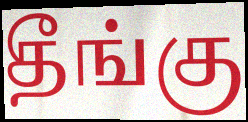
தீங்கு